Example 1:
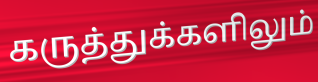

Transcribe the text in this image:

கருத்துக்களிலும்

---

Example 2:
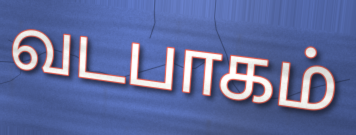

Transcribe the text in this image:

வடபாகம்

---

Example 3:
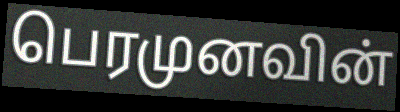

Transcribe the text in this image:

பெரமுனவின்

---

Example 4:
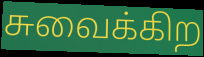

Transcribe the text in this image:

சுவைக்கிற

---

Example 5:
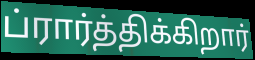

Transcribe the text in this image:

ப்ரார்த்திக்கிறார்